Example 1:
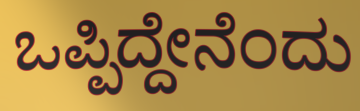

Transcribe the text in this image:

ಒಪ್ಪಿದ್ದೇನೆಂದು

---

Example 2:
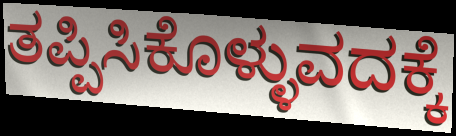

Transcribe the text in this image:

ತಪ್ಪಿಸಿಕೊಳ್ಳುವದಕ್ಕೆ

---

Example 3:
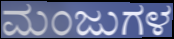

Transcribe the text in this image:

ಮಂಜುಗಳ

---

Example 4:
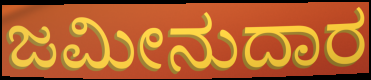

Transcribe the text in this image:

ಜಮೀನುದಾರ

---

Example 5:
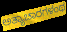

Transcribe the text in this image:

ಅತ್ಯಾಚಾರಗಳಂಥ